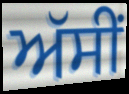
ਅੱਸੀਂ